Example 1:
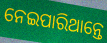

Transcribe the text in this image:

ନେଇପାରିଥାନ୍ତେ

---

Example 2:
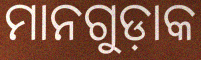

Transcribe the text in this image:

ମାନଗୁଡ଼ାକ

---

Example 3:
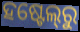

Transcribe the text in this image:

ହଷ୍ଟେଲ୍‍ରୁ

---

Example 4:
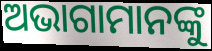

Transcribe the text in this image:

ଅଭାଗାମାନଙ୍କୁ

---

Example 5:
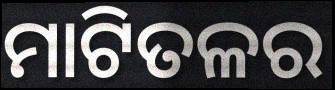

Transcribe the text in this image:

ମାଟିତଳର